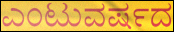
ಎಂಟುವರ್ಷದ